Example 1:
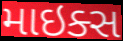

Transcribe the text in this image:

માઇક્સ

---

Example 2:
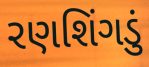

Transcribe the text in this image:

રણશિંગડું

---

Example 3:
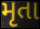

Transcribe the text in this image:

મૃતા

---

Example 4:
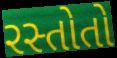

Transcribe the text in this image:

રસ્તોતો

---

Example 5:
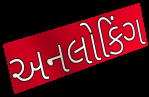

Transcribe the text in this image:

અનલોકિંગ